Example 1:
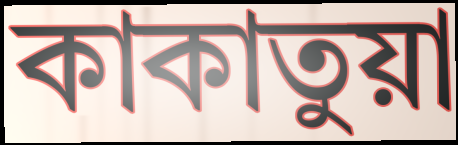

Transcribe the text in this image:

কাকাতুয়া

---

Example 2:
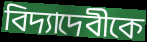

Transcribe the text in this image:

বিদ্যাদেবীকে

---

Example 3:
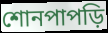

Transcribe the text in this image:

শোনপাপড়ি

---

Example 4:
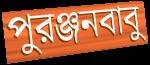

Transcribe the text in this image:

পুরঞ্জনবাবু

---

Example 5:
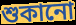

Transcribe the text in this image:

শুকানো